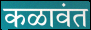
कळावंत